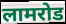
लामरोड